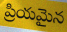
ప్రియమైన